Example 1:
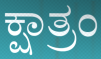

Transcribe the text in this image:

ಕ್ಷಾತ್ರಂ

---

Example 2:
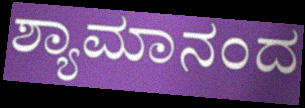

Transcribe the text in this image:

ಶ್ಯಾಮಾನಂದ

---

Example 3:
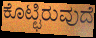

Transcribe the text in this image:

ಕೊಟ್ಟಿರುವುದೆ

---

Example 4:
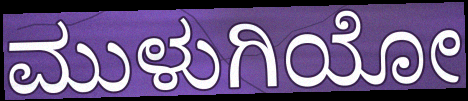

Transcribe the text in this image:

ಮುಳುಗಿಯೋ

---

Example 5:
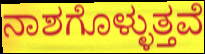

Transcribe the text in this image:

ನಾಶಗೊಳ್ಳುತ್ತವೆ